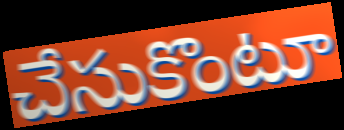
చేసుకొంటూ